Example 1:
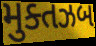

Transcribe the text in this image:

મુક્તઝબ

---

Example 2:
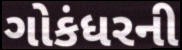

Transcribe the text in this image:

ગોકંધરની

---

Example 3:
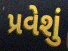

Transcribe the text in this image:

પ્રવેશું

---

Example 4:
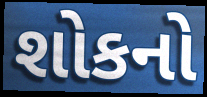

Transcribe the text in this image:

શોકનો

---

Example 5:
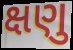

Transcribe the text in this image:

ક્ષણુ